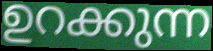
ഉറക്കുന്ന